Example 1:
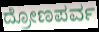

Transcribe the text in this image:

ದ್ರೋಣಪರ್ವ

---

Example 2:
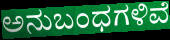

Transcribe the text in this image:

ಅನುಬಂಧಗಳಿವೆ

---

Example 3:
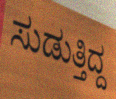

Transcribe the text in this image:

ಸುಡುತ್ತಿದ್ದ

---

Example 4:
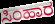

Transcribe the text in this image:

ಸಿಂಹಾರ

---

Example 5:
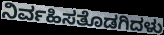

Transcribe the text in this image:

ನಿರ್ವಹಿಸತೊಡಗಿದಳು